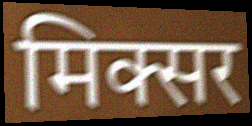
मिक्‍सर